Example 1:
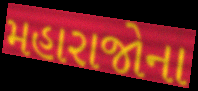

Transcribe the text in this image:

મહારાજોના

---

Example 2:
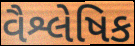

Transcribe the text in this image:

વૈશ્લેષિક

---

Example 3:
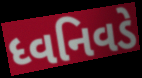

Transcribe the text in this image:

ધ્વનિવડે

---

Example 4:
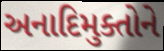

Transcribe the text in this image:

અનાદિમુક્તોને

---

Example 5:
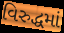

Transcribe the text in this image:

વિરુદ્ધમાં